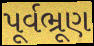
પૂર્વભ્રૂણ